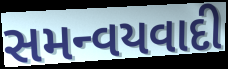
સમન્વયવાદી